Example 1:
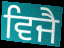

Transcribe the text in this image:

ਵਿਜੈ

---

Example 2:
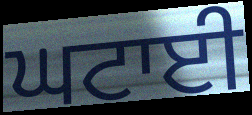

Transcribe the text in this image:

ਘਟਾਈ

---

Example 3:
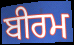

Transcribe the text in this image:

ਬੀਰਮ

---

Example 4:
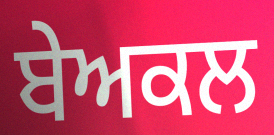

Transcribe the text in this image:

ਬੇਅਕਲ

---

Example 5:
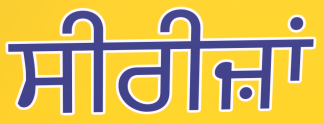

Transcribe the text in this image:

ਸੀਰੀਜ਼ਾਂ